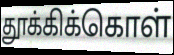
தூக்கிக்கொள்